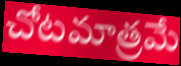
చోటమాత్రమే